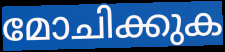
മോചിക്കുക